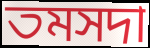
তমসদা